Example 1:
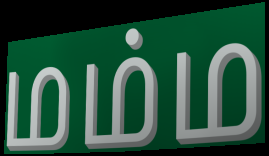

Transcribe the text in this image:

மம்ம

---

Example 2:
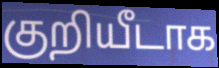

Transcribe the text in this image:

குறியீடாக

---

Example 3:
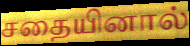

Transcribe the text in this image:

சதையினால்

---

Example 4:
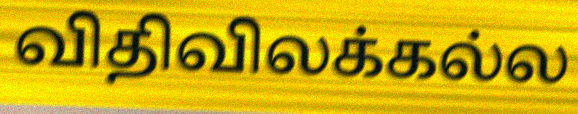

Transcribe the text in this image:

விதிவிலக்கல்ல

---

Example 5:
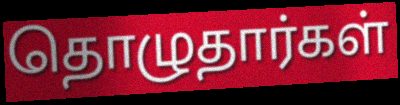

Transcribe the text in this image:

தொழுதார்கள்